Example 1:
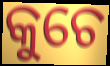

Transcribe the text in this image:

କୁଚେ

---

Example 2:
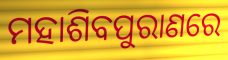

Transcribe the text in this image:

ମହାଶିବପୁରାଣରେ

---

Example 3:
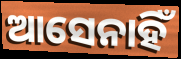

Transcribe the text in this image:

ଆସେନାହିଁ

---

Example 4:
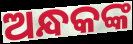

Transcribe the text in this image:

ଅନ୍ଧକଙ୍କ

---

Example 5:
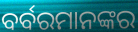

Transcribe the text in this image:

ବର୍ବରମାନଙ୍କର